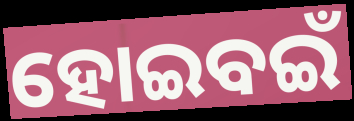
ହୋଇବଇଁ